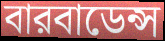
বারবাডেন্স